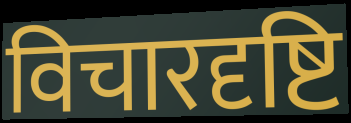
विचारदृष्टि